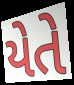
યેતે